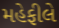
મહેફીલે